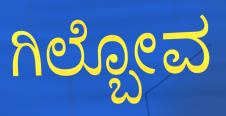
ಗಿಲ್ಬೋವ